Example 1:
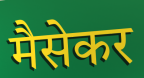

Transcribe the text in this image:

मैसेकर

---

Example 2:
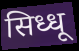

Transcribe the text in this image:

सिध्धू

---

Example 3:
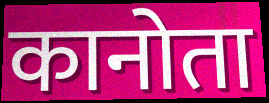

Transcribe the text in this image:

कानोता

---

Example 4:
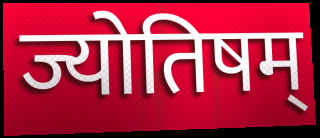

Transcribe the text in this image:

ज्योतिषम्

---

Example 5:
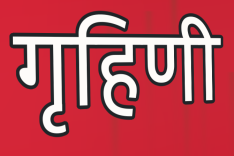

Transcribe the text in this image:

गृहिणी